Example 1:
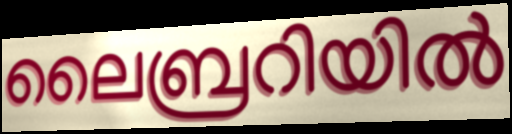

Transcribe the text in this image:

ലൈബ്രറിയിൽ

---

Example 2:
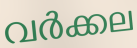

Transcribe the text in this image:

വർക്കല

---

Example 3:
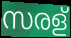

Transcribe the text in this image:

സരള്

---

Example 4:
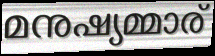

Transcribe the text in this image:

മനുഷ്യമ്മാര്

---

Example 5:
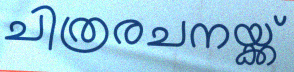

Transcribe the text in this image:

ചിത്രരചനയ്ക്ക്